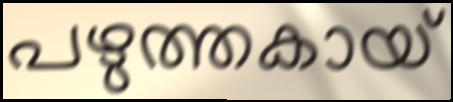
പഴുത്തകായ്